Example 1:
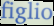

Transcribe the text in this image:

figlio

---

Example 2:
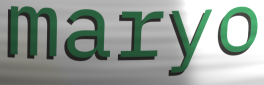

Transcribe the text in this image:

maryo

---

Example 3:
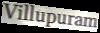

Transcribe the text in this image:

Villupuram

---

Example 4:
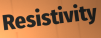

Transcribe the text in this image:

Resistivity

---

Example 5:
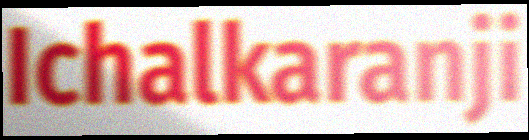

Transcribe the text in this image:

Ichalkaranji